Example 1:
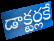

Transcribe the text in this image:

డాక్టర్లకే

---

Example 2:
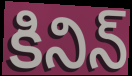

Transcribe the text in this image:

కినిన్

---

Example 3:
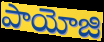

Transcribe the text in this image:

పాయోజి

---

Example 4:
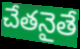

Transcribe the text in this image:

చేతనైతే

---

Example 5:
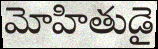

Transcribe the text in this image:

మోహితుడై